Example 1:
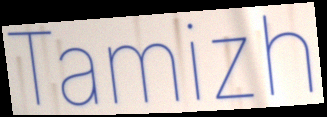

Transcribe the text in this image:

Tamizh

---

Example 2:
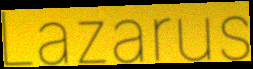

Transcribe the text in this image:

Lazarus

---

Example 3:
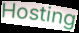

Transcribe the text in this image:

Hosting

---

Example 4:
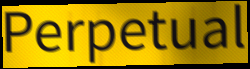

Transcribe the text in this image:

Perpetual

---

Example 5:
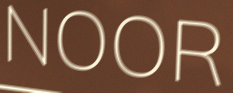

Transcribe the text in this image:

NOOR